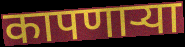
कापणाऱ्या